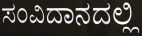
ಸಂವಿದಾನದಲ್ಲಿ